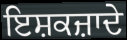
ਇਸ਼ਕਜ਼ਾਦੇ